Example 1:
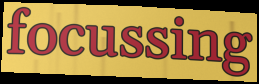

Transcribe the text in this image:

focussing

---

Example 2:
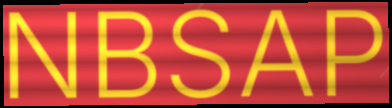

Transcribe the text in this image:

NBSAP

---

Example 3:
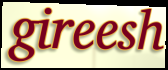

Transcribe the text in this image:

gireesh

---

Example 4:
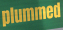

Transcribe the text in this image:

plummed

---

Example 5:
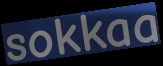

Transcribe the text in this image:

sokkaa